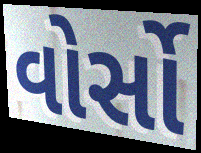
વોર્સો